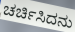
ಚರ್ಚಿಸಿದನು